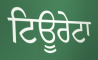
ਟਿਊਰੇਟਾ